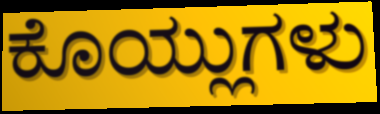
ಕೊಯ್ಲುಗಳು